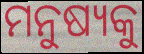
ମନୁଷ୍ୟକୁ